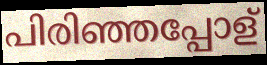
പിരിഞ്ഞപ്പോള്